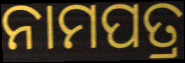
ନାମପତ୍ର